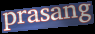
prasang